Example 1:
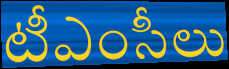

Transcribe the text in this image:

టీఎంసీలు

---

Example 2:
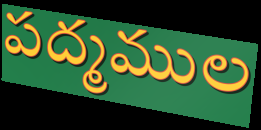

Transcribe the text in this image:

పద్మముల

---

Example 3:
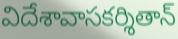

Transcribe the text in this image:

విదేశావాసకర్శితాన్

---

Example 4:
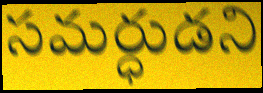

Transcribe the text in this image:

సమర్ధుడని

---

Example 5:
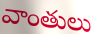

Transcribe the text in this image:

వాంతులు